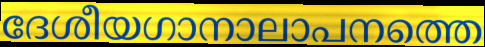
ദേശീയഗാനാലാപനത്തെ